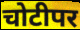
चोटीपर